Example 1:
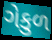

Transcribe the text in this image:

ગેકુળ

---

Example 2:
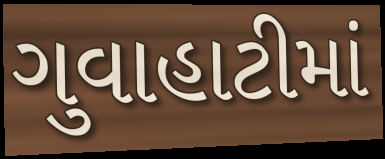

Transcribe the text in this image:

ગુવાહાટીમાં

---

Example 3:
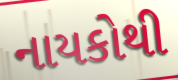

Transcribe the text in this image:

નાયકોથી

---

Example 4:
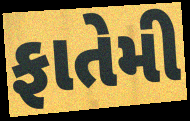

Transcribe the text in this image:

ફાતેમી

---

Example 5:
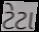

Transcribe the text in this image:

ટેટા